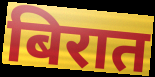
बिरात